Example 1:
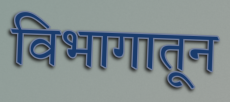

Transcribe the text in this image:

विभागातून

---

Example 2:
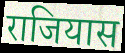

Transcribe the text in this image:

राजियास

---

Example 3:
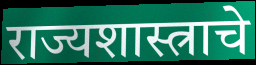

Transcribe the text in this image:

राज्यशास्त्राचे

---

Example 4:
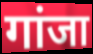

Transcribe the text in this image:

गांजा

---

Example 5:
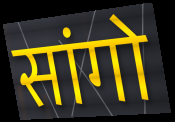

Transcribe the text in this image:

सांगो